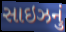
સાઇઝનું